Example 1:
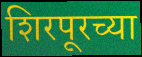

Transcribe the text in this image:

शिरपूरच्या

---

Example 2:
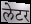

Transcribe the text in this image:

लेटर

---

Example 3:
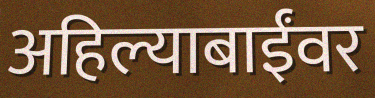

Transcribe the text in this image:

अहिल्याबाईंवर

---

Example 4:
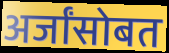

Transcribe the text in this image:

अर्जांसोबत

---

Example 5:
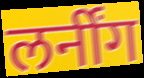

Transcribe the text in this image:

लर्नींग